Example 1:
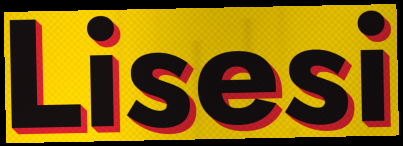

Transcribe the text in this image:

Lisesi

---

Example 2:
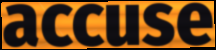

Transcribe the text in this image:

accuse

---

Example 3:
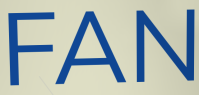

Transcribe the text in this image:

FAN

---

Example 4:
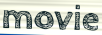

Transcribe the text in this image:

movie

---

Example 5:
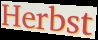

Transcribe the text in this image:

Herbst